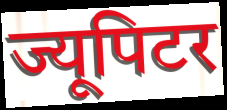
ज्यूपिटर